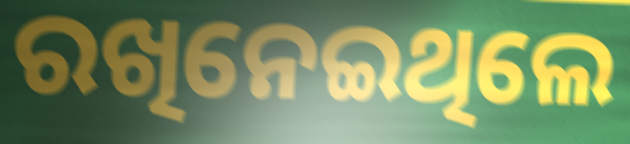
ରଖିନେଇଥିଲେ